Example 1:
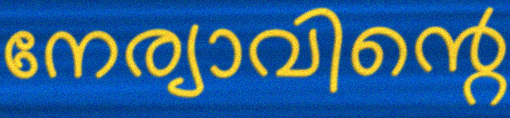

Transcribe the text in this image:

നേര്യാവിന്റെ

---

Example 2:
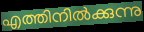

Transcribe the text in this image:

എത്തിനിൽക്കുന്നു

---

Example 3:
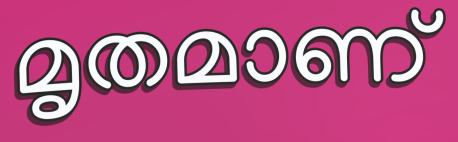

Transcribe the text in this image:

മൃതമാണ്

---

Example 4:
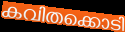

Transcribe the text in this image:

കവിതക്കൊടി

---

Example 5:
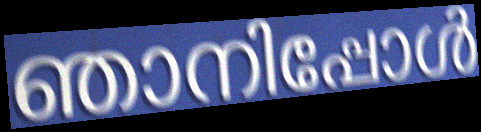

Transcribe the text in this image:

ഞാനിപ്പോൾ